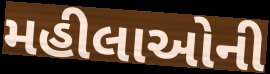
મહીલાઓની